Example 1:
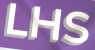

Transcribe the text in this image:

LHS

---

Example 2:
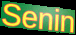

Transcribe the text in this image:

Senin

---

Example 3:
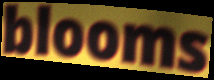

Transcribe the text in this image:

blooms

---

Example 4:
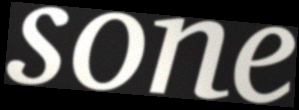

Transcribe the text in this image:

sone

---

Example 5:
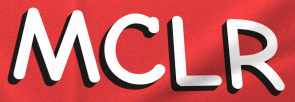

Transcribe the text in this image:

MCLR